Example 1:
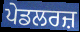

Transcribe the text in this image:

ਪੇਡਲਰਜ਼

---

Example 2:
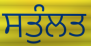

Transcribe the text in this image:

ਸਤੁੰਲਤ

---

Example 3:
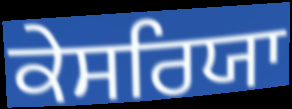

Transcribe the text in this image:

ਕੇਸਰਿਯਾ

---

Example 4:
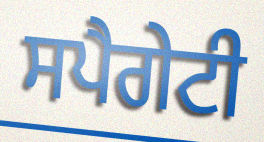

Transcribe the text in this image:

ਸਪੈਗੇਟੀ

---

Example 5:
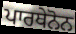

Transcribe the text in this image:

ਪਾਰਥੇਨੋਨ